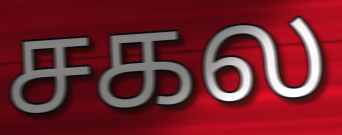
சகல